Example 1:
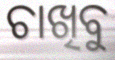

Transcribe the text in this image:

ଚାଖିବୁ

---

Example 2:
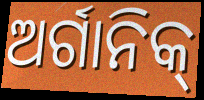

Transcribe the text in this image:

ଅର୍ଗାନିକ୍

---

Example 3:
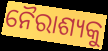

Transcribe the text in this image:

ନୈରାଶ୍ୟକୁ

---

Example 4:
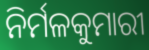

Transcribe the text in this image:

ନିର୍ମଳକୁମାରୀ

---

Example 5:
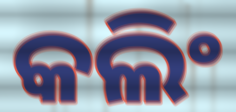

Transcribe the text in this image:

କଲିଂ